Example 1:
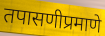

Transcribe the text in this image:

तपासणीप्रमाणे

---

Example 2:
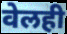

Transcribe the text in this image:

वेलही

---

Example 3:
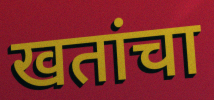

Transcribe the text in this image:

खतांचा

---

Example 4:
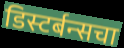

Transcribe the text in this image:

डिस्टर्बन्सचा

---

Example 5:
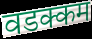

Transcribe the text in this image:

वडक्कम